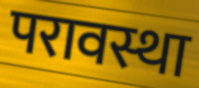
परावस्था